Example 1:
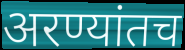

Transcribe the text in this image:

अरण्यांतच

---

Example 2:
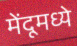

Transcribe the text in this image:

मेंदूमध्ये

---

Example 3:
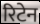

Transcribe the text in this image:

रिटेन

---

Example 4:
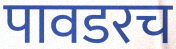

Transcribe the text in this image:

पावडरच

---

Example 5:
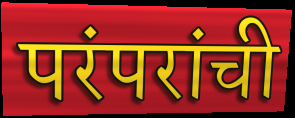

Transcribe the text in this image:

परंपरांची